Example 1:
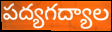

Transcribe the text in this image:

పద్యగద్యాల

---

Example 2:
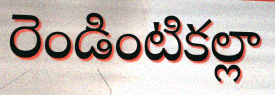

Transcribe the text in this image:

రెండింటికల్లా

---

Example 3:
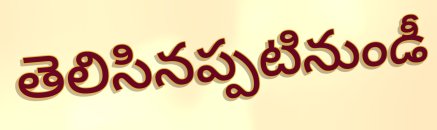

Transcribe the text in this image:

తెలిసినప్పటినుండీ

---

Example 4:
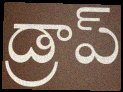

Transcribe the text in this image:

డ్రాప్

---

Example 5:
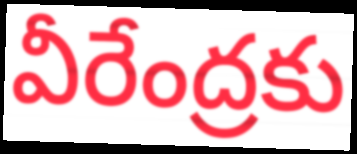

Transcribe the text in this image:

వీరేంద్రకు